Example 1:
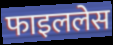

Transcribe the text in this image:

फाइललेस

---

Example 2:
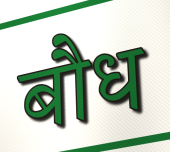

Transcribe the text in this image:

बौध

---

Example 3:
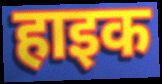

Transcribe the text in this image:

हाइक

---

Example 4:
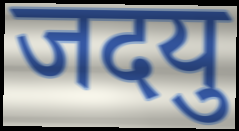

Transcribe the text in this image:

जदयु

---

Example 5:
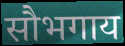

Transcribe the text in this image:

सौभगाय